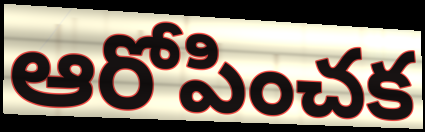
ఆరోపించక